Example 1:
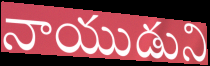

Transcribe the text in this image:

నాయుడుని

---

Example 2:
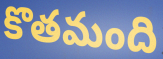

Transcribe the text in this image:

కొతమంది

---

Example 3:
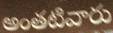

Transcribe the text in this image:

అంతటివారు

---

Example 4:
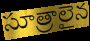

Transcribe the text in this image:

సూత్రాలైన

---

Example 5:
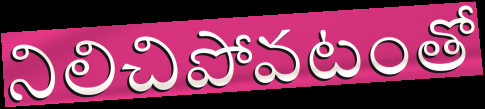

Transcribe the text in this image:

నిలిచిపోవటంతో